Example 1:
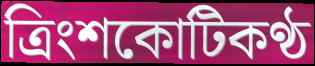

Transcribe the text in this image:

ত্রিংশকোটিকণ্ঠ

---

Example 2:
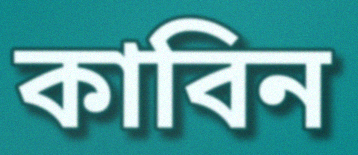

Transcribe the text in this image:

কাবিন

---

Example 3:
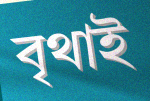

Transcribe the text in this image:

বৃথাই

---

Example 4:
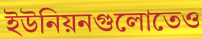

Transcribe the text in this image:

ইউনিয়নগুলোতেও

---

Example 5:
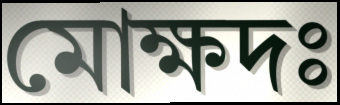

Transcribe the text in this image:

মোক্ষদঃ